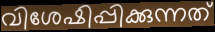
വിശേഷിപ്പിക്കുന്നത്